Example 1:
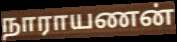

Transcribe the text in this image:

நாராயணன்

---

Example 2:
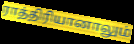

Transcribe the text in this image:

ராத்திரியானாலும்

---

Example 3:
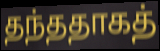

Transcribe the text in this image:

தந்ததாகத்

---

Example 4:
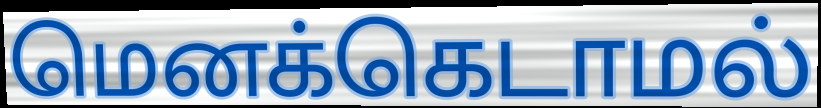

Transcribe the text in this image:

மெனக்கெடாமல்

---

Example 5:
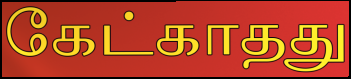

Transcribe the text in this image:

கேட்காதது